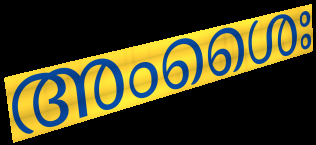
അംശൈഃ